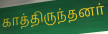
காத்திருந்தனர்